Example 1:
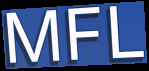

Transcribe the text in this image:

MFL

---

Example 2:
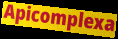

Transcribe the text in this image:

Apicomplexa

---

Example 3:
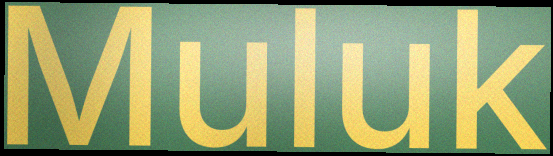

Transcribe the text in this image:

Muluk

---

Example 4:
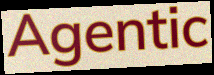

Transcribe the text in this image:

Agentic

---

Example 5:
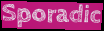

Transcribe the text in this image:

Sporadic